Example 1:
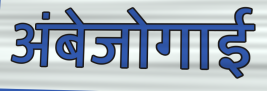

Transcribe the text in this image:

अंबेजोगाई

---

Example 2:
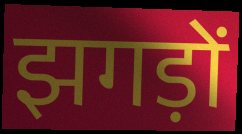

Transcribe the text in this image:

झगड़ों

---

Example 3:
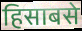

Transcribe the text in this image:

हिसाबसे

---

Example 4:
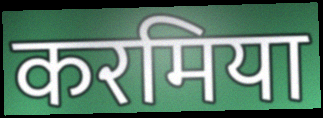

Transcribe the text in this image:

करमिया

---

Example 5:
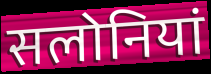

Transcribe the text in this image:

सलोनियां